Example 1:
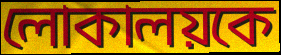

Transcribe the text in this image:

লোকালয়কে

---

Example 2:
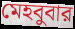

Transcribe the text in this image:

মেহবুবার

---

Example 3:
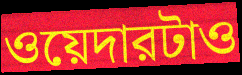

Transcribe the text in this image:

ওয়েদারটাও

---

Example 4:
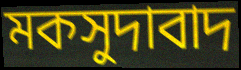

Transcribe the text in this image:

মকসুদাবাদ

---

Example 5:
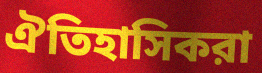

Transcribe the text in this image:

ঐতিহাসিকরা